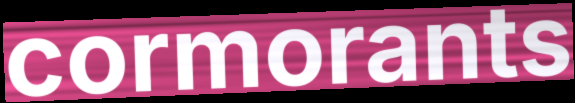
cormorants